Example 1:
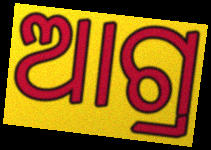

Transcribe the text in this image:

ଆଗ୍ର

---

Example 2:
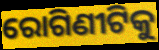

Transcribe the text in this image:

ରୋଗିଣୀଟିକୁ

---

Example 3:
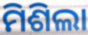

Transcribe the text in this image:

ମିଶିଲା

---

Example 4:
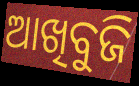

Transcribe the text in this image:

ଆଖିବୁଜି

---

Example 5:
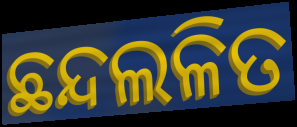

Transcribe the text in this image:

ଛନ୍ଦଲଳିତ